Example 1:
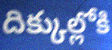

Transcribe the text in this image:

దిక్కుల్లోకి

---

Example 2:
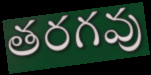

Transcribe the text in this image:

తరగవు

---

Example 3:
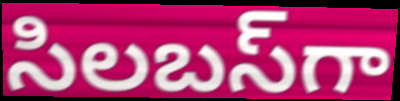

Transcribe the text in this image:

సిలబస్‌గా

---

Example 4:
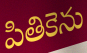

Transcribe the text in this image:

పితికెను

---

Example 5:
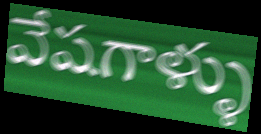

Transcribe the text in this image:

వేషగాళ్ళు